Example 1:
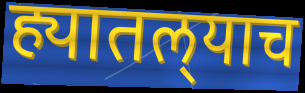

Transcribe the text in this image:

ह्यातल्याच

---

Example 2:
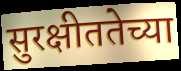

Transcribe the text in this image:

सुरक्षीततेच्या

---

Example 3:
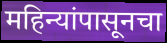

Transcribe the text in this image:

महिन्यांपासूनचा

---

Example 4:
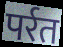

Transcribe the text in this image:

पर्रत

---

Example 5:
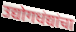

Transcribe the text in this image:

उद्योगधंद्यांचा